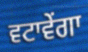
ਵਟਾਵੇਂਗਾ